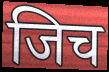
जिच